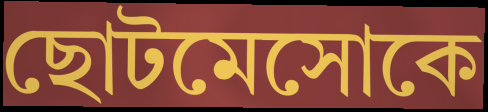
ছোটমেসোকে